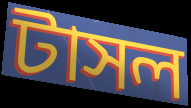
টাসল